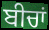
ਬੀਚਾਂ